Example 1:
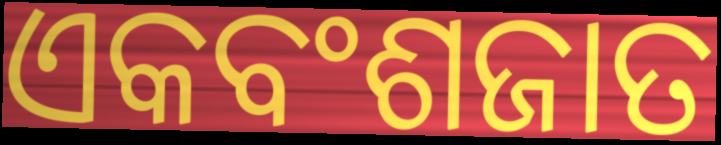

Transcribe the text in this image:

ଏକବଂଶଜାତ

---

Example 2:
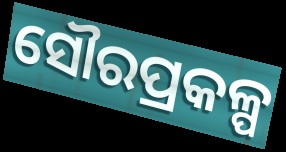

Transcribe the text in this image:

ସୌରପ୍ରକଳ୍ପ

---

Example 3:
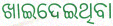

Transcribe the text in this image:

ଖାଇଦେଇଥିବା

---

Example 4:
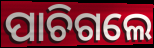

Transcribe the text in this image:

ପାଚିଗଲେ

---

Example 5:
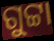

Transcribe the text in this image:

ଗୁଟ୍ଟା